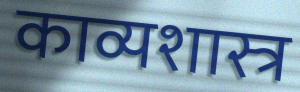
काव्यशास्त्र